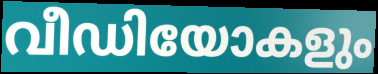
വീഡിയോകളും